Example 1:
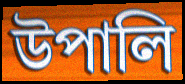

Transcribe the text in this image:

উপালি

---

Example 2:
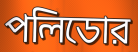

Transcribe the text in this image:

পলিডোর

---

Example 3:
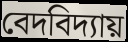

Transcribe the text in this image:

বেদবিদ্যায়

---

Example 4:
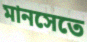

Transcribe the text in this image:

মানসেতে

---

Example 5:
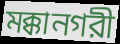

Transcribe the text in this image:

মক্কানগরী